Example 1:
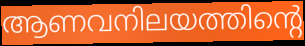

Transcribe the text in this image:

ആണവനിലയത്തിന്റെ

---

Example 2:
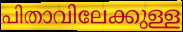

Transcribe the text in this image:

പിതാവിലേക്കുള്ള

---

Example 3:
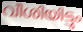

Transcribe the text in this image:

വീശിയിട്ടും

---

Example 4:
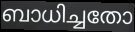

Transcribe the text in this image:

ബാധിച്ചതോ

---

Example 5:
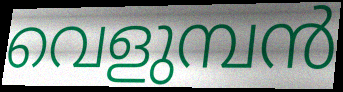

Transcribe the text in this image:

വെളുമ്പൻ